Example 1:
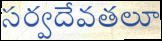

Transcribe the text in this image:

సర్వదేవతలూ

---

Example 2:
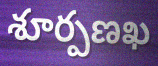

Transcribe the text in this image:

శూర్పణఖ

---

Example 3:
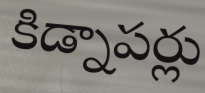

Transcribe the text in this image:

కిడ్నాపర్లు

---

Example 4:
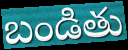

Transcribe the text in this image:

బండితు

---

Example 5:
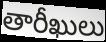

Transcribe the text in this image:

తారీఖులు